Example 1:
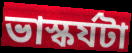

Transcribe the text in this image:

ভাস্কর্যটা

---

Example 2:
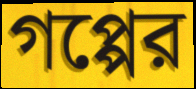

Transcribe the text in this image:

গপ্পের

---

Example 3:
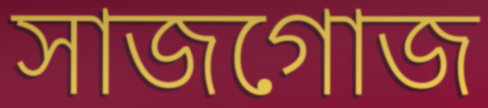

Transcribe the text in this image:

সাজগোজ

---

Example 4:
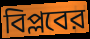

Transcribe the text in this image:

বিপ্লবের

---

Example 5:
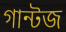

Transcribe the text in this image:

গান্টজ